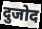
दुजोद